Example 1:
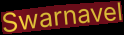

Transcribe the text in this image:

Swarnavel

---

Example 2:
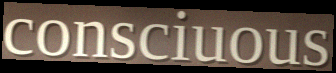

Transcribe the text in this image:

consciuous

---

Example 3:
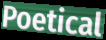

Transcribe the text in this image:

Poetical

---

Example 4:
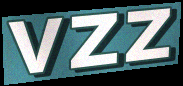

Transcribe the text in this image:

vzz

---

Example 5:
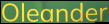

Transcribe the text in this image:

Oleander